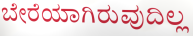
ಬೇರೆಯಾಗಿರುವುದಿಲ್ಲ